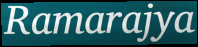
Ramarajya